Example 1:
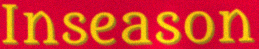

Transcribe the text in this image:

Inseason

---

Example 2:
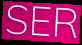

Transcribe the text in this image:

SER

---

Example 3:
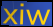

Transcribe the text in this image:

xiw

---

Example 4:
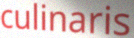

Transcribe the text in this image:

culinaris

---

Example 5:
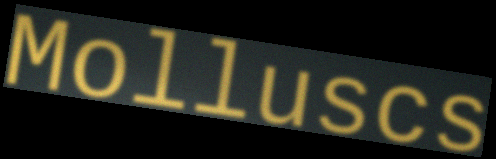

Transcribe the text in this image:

Molluscs